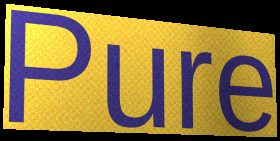
Pure